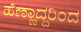
ಹೆಣ್ಣಾದ್ದರಿಂದ